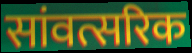
सांवत्सरिक